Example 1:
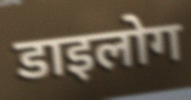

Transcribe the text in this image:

डाइलोग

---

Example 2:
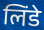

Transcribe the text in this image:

लिंडे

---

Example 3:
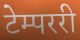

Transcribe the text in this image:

टेम्पररी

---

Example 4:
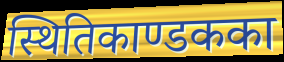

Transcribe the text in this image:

स्थितिकाण्डकका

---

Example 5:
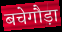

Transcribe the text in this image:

बचेगौड़ा